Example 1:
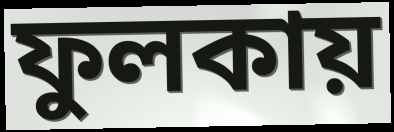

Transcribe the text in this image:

ফুলকায়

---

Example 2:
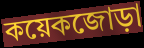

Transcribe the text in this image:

কয়েকজোড়া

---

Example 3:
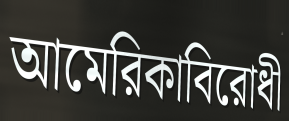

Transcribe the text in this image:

আমেরিকাবিরোধী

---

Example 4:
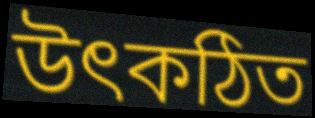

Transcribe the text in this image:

উৎকঠিত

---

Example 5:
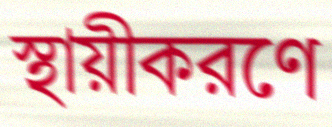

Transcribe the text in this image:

স্থায়ীকরণে